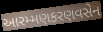
આરમ્મણકરણવસેન